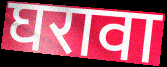
घरावा